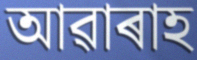
আৱাৰাহ